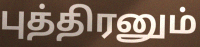
புத்திரனும்